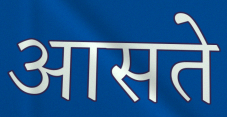
आसते